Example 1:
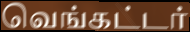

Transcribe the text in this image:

வெங்கட்டர்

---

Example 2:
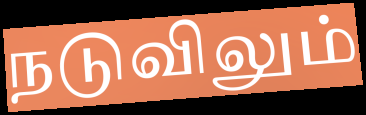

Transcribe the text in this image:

நடுவிலும்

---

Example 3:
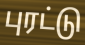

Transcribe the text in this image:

புரட்டு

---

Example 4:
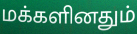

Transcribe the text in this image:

மக்களினதும்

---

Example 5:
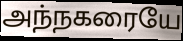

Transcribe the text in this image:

அந்நகரையே